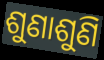
ଶୁଣାଶୁଣି